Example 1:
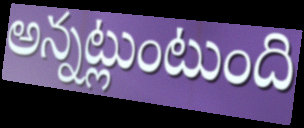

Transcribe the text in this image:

అన్నట్లుంటుంది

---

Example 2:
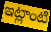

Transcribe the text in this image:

ఇట్లాంటి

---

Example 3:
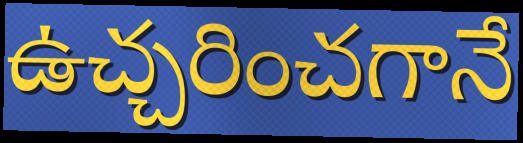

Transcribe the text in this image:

ఉచ్చరించగానే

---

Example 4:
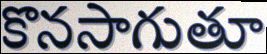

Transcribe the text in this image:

కొనసాగుతూ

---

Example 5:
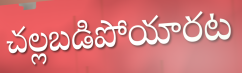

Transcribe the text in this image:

చల్లబడిపోయారట